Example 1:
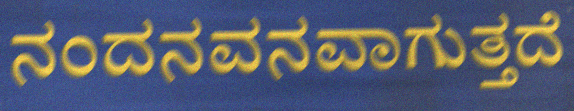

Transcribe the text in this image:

ನಂದನವನವಾಗುತ್ತದೆ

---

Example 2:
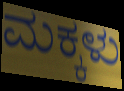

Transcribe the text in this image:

ಮಕ್ಕಳು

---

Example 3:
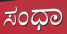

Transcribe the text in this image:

ಸಂಧಾ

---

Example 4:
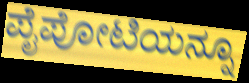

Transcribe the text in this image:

ಪೈಪೋಟಿಯನ್ನೂ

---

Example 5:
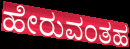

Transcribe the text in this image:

ಹೇರುವಂತಹ